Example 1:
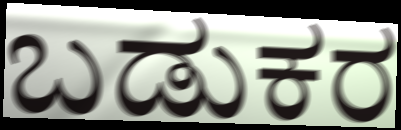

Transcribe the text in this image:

ಬಡುಕರ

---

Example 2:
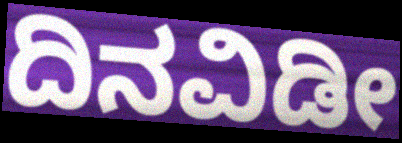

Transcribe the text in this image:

ದಿನವಿಡೀ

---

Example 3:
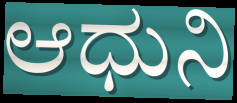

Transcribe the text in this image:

ಆಧುನಿ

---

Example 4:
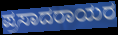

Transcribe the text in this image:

ಪ್ರಸಾದರಾಯರ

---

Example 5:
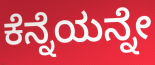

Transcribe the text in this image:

ಕೆನ್ನೆಯನ್ನೇ